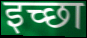
इच्‍छा